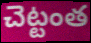
చెట్టంత